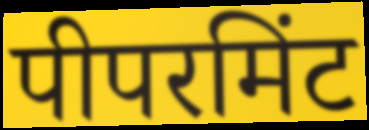
पीपरमिंट